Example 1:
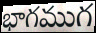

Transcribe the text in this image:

భాగముగ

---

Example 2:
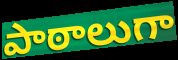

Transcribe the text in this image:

పాఠాలుగా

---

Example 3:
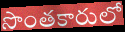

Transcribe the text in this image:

సొంతకారులో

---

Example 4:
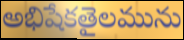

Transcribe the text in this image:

అభిషేకతైలమును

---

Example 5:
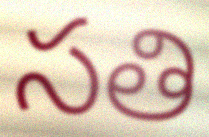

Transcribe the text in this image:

సతి